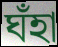
ঘঁহা